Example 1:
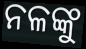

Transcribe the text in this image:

ନଳଙ୍କୁ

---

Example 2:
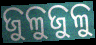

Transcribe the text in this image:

ଜୁଳୁଜୁଳୁ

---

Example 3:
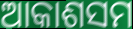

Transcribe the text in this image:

ଆକାଶସମ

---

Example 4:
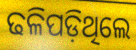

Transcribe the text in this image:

ଢଳିପଡ଼ିଥିଲେ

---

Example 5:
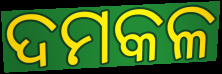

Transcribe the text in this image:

ଦମକଳ